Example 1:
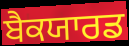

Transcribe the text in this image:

ਬੈਕਯਾਰਡ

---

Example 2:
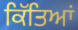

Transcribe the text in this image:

ਕਿੱਤਿਆਂ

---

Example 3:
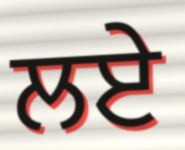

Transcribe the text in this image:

ਲਏ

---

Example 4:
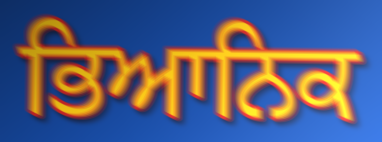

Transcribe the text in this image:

ਭਿਆਨਿਕ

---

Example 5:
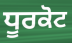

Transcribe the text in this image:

ਧੂਰਕੋਟ